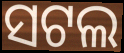
ସଟଲ